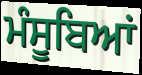
ਮੰਸੂਬਿਆਂ